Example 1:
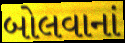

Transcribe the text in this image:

બોલવાનાં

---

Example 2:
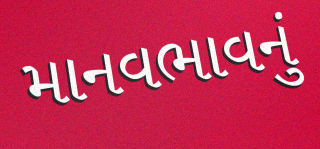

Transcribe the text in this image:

માનવભાવનું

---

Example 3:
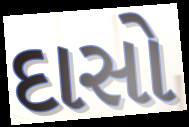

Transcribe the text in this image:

દાસો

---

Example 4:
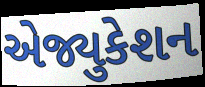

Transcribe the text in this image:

એજ્યુકેશન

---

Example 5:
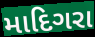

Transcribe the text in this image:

માદિગરા